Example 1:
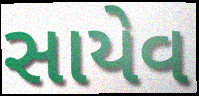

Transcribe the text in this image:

સાયેવ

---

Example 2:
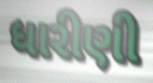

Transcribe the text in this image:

ધારીણી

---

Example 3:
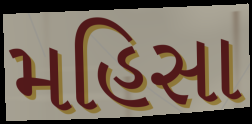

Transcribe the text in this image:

મહિસા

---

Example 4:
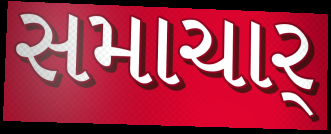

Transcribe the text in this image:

સમાચાર્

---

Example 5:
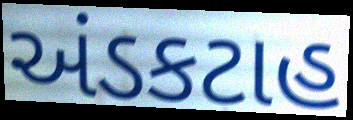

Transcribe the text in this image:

અંડકટાહ